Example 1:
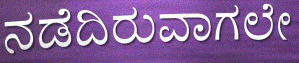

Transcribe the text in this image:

ನಡೆದಿರುವಾಗಲೇ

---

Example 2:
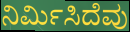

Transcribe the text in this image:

ನಿರ್ಮಿಸಿದೆವು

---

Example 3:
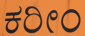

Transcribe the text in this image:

ಕರೀಂ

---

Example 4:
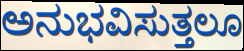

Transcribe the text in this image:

ಅನುಭವಿಸುತ್ತಲೂ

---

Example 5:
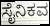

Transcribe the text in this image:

ಸೈನಿಕವ